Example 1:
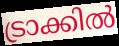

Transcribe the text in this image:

ട്രാക്കിൽ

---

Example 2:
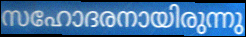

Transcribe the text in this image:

സഹോദരനായിരുന്നു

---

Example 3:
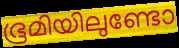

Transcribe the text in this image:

ഭൂമിയിലുണ്ടോ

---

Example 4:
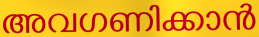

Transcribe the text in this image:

അവഗണിക്കാൻ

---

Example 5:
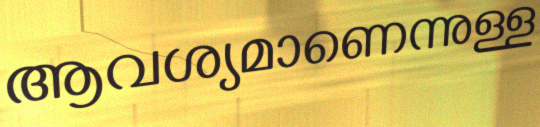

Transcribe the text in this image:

ആവശ്യമാണെന്നുള്ള